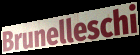
Brunelleschi